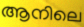
ആനിലെ